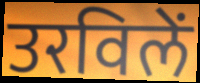
उरविलें